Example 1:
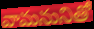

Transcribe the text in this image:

వామనునితో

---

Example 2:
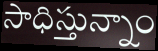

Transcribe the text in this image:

సాధిస్తున్నాం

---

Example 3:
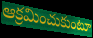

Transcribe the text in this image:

ఆక్రమించుకుంటూ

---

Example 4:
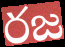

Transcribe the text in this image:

రజ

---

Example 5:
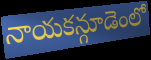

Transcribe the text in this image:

నాయకన్గూడెంలో